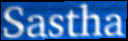
Sastha